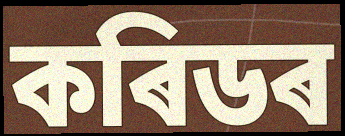
কৰিডৰ